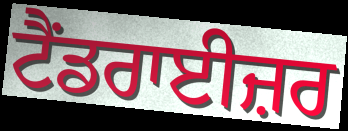
ਟੈਂਡਰਾਈਜ਼ਰ